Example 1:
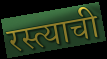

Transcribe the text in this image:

रस्त्याची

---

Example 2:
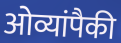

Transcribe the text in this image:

ओव्यांपैकी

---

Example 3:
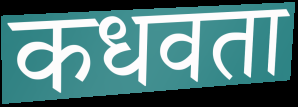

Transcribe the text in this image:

कधवता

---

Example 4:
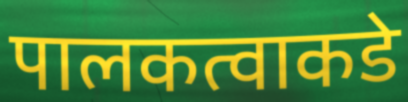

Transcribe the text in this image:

पालकत्वाकडे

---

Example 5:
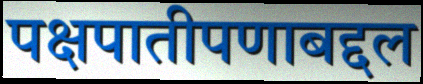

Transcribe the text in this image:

पक्षपातीपणाबद्दल